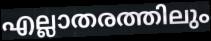
എല്ലാതരത്തിലും